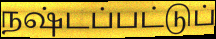
நஷ்டப்பட்டுப்